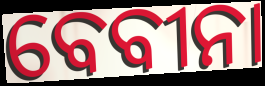
ବେବୀନା